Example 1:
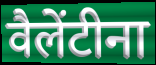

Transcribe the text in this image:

वैलेंटीना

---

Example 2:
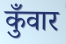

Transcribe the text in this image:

कुँवार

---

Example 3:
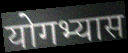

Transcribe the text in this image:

योगभ्यास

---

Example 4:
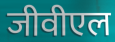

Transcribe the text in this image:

जीवीएल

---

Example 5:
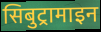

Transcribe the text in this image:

सिबुट्रामाइन